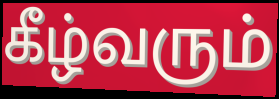
கீழ்வரும்